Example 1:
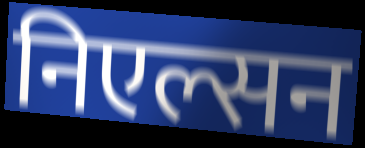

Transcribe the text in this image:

निएल्सन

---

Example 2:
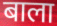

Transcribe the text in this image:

बाला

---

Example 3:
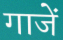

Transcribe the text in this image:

गाजें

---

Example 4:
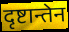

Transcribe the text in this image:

दृष्टान्तेन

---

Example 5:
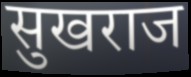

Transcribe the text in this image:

सुखराज